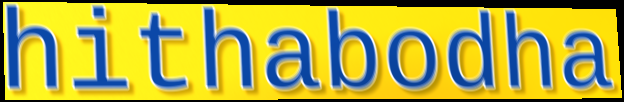
hithabodha